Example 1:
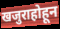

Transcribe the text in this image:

खजुराहोहून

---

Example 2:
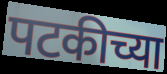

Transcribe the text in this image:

पटकीच्या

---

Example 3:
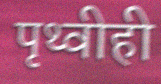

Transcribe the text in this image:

पृथ्वीही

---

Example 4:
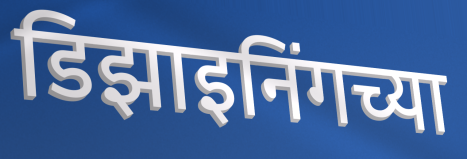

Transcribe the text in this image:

डिझाइनिंगच्या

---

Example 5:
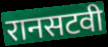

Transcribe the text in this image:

रानसटवी